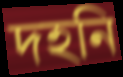
দহনি